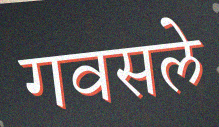
गवसले